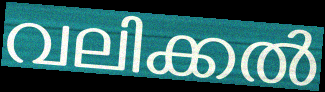
വലിക്കൽ